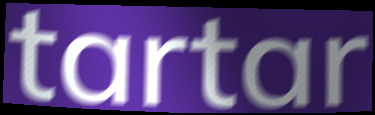
tartar